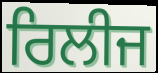
ਰਿਲੀਜ